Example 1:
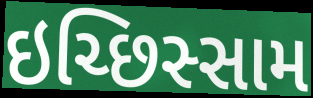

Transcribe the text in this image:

ઇચ્છિસ્સામ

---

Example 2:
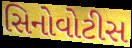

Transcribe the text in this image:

સિનોવોટીસ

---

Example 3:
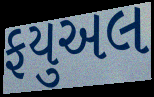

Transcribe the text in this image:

ફયુઅલ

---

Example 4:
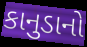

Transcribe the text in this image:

કાનુડાનો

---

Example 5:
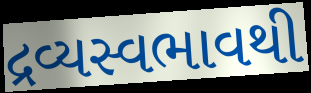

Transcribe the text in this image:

દ્રવ્યસ્વભાવથી